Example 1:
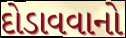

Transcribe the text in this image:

દોડાવવાનો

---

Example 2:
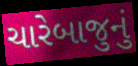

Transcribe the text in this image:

ચારેબાજુનું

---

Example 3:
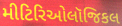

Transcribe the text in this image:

મીટિરિઓલૉજિકલ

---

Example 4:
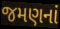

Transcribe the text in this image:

જમણનાં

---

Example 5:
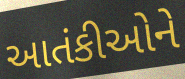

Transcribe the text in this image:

આતંકીઓને